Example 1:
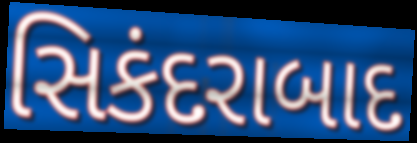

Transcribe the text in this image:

સિકંદરાબાદ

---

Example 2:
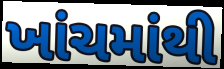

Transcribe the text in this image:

ખાંચમાંથી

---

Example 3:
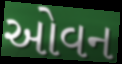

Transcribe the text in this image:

ઓવન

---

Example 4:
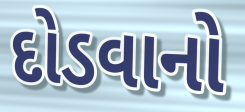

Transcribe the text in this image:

દોડવાનો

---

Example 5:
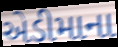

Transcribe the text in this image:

એડીમાના